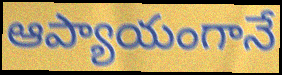
ఆప్యాయంగానే